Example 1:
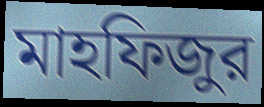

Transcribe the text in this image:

মাহফিজুর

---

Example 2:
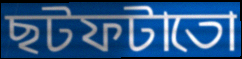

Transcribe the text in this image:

ছটফটাতো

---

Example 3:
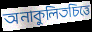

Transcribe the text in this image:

অনাকুলিতচিত্তে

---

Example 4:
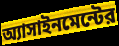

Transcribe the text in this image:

অ্যাসাইনমেন্টের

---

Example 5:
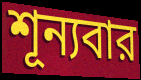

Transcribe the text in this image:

শূন্যবার